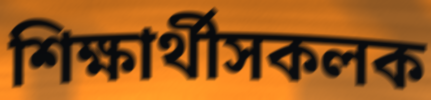
শিক্ষাৰ্থীসকলক